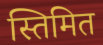
स्तिमित